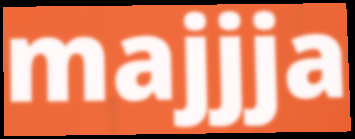
majjja